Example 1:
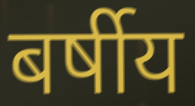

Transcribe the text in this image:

बर्षीय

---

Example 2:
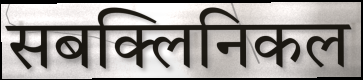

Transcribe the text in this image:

सबक्लिनिकल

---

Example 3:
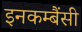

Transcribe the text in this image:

इनकम्बैंसी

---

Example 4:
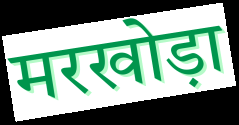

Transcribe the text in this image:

मरखोड़ा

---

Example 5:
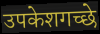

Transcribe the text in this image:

उपकेशगच्छे